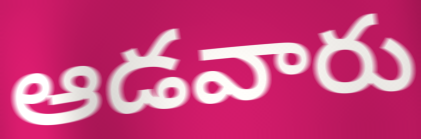
ఆడవారు